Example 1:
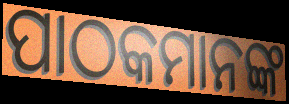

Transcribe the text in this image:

ପାଠକମାନଙ୍କ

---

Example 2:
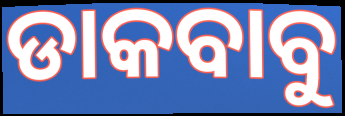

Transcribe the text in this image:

ଡାକବାବୁ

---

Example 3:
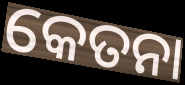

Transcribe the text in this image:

କେତନା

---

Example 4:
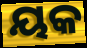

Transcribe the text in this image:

ୟକ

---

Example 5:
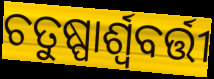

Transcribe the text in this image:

ଚତୁଷ୍ପାର୍ଶ୍ୱବର୍ତ୍ତୀ